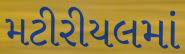
મટીરીયલમાં